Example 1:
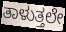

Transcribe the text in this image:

ತಾಳುತ್ತಲೇ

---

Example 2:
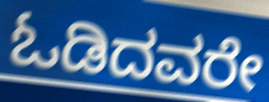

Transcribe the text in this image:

ಓಡಿದವರೇ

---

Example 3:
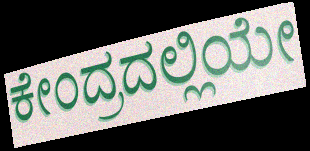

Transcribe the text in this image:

ಕೇಂದ್ರದಲ್ಲಿಯೇ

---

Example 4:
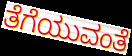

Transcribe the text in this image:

ತೆಗೆಯುವಂತೆ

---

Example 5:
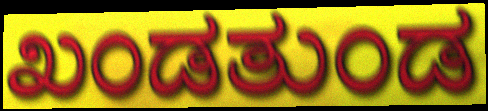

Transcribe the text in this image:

ಖಂಡತುಂಡ